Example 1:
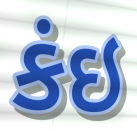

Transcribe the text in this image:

કંઇ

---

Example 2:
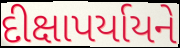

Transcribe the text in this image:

દીક્ષાપર્યાયને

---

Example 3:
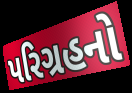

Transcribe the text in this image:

પરિગ્રહનો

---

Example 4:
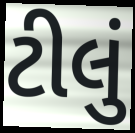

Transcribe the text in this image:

ટીલું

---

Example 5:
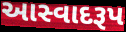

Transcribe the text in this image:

આસ્વાદરૂપ